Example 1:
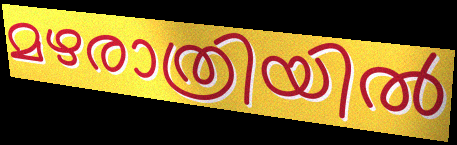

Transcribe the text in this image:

മഴരാത്രിയിൽ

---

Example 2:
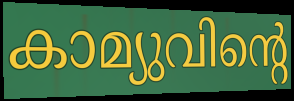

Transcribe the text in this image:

കാമ്യുവിന്റെ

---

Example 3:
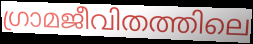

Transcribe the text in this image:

ഗ്രാമജീവിതത്തിലെ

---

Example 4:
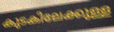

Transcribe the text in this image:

കുടകിലേക്കുള്ള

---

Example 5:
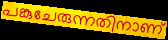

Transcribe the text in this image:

പങ്കുചേരുന്നതിനാണ്